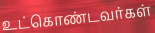
உட்கொண்டவர்கள்